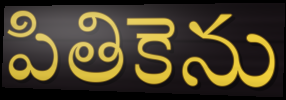
పితికెను